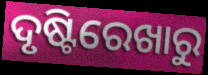
ଦୃଷ୍ଟିରେଖାରୁ